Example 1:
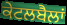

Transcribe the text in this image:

ਕੇਟਲਬੈਲਾਂ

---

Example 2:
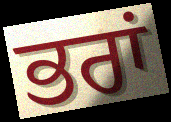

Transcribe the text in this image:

ਭਰਾਂ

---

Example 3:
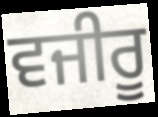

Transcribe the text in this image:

ਵਜੀਰੂ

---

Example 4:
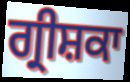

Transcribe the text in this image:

ਗ੍ਰੀਸ਼ਕਾ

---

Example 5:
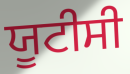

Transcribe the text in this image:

ਯੂਟੀਸੀ